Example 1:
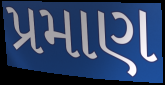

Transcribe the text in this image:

પ્રમાણ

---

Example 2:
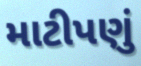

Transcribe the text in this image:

માટીપણું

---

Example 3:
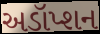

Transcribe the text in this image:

અડૉપ્શન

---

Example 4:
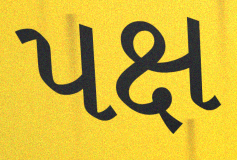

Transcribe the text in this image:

પક્ષ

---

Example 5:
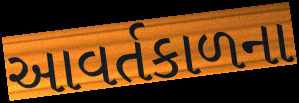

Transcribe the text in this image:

આવર્તકાળના